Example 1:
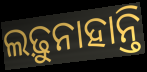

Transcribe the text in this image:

ଲଢ଼ୁନାହାନ୍ତି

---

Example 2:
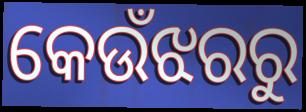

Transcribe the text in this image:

କେଉଁଝରରୁ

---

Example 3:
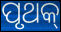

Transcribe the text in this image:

ପୃଥକ୍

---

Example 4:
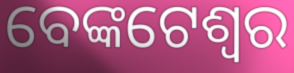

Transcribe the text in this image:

ବେଙ୍କଟେଶ୍ୱର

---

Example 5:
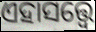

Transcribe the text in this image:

ଏହାସତ୍ତ୍ବେ